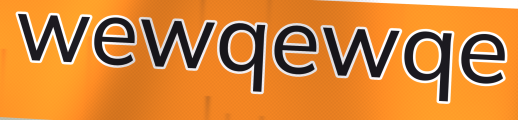
wewqewqe